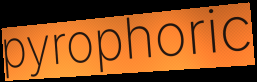
pyrophoric